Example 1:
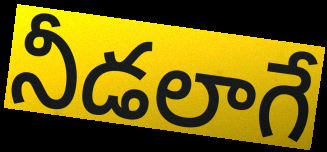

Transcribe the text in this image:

నీడలాగే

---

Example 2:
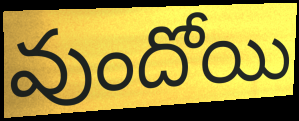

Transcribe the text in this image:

వుందోయి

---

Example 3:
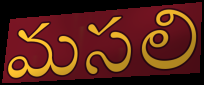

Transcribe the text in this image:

మసలి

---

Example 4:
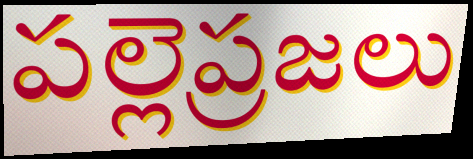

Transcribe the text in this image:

పల్లెప్రజలు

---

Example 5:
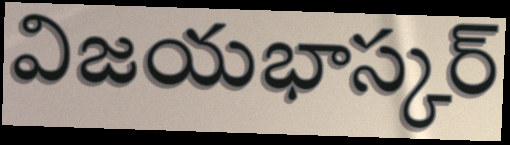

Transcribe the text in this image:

విజయభాస్కర్